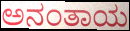
ಅನಂತಾಯ